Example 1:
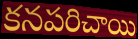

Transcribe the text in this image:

కనపరిచాయి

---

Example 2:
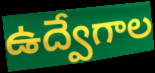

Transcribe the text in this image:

ఉద్వేగాల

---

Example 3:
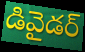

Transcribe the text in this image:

డివైడర్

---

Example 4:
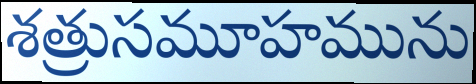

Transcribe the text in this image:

శత్రుసమూహమును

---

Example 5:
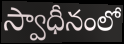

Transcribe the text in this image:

స్వాధీనంలో